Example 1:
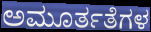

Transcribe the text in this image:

ಅಮೂರ್ತತೆಗಳ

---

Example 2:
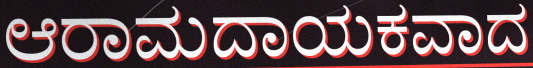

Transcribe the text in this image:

ಆರಾಮದಾಯಕವಾದ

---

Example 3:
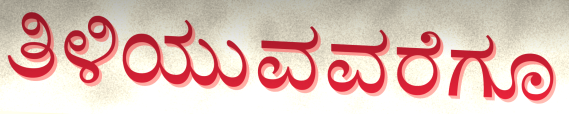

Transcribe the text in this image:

ತಿಳಿಯುವವರೆಗೂ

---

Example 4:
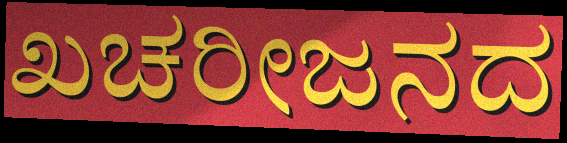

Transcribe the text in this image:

ಖಚರೀಜನದ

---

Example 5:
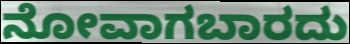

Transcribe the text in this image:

ನೋವಾಗಬಾರದು